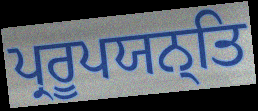
ਪ੍ਰਰੂਪਯਨ੍ਤਿ